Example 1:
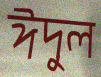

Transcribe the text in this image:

ঈদুল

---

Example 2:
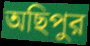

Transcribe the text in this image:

অছিপুর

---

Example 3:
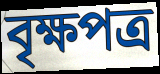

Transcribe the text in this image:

বৃক্ষপত্র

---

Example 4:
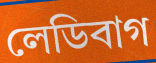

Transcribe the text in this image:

লেডিবাগ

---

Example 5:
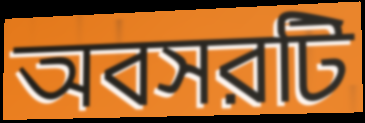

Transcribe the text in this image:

অবসরটি